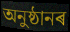
অনুষ্ঠানৰ